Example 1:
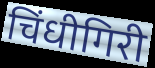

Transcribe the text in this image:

चिंधीगिरी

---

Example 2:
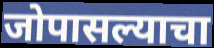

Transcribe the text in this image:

जोपासल्याचा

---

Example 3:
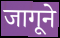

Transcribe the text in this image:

जागूने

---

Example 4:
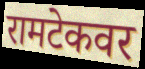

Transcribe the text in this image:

रामटेकवर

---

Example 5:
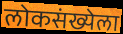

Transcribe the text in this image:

लोकसंख्येला